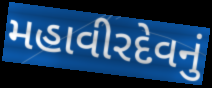
મહાવીરદેવનું